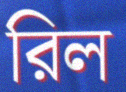
রিল